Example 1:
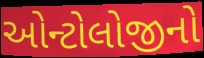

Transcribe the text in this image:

ઓન્ટોલોજીનો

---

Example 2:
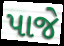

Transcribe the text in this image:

પાજે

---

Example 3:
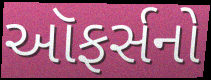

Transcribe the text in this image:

ઑફર્સનો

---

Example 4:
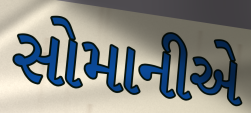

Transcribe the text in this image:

સોમાનીએ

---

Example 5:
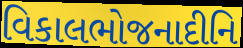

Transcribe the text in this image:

વિકાલભોજનાદીનિ